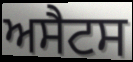
ਅਸੈਟਸ